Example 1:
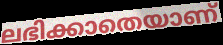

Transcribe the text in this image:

ലഭിക്കാതെയാണ്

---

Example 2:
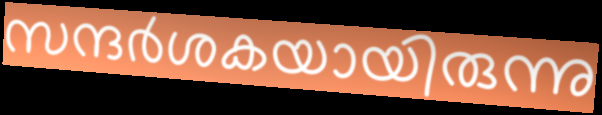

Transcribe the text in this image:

സന്ദർശകയായിരുന്നു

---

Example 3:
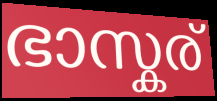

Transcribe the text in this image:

ഭാസ്കര്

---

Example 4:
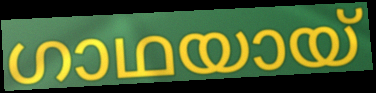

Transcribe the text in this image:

ഗാഥയായ്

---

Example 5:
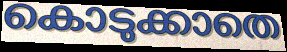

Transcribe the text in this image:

കൊടുക്കാതെ